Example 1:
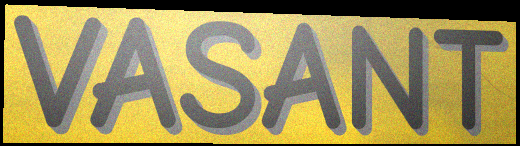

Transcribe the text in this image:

VASANT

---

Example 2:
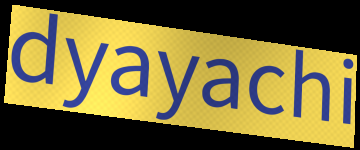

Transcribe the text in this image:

dyayachi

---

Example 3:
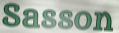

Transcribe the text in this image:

Sasson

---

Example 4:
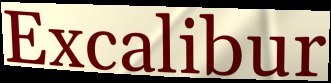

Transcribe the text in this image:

Excalibur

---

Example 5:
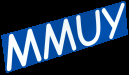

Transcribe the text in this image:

MMUY